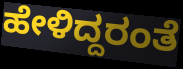
ಹೇಳಿದ್ದರಂತೆ